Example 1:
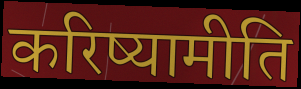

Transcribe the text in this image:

करिष्यामीति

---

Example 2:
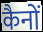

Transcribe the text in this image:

कैनों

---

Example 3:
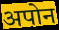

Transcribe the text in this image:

अपोन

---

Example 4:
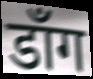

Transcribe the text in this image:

डाँग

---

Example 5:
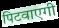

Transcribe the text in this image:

पिटवाएगी